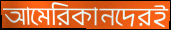
আমেরিকানদেরই